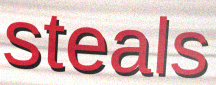
steals